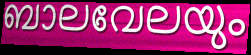
ബാലവേലയും